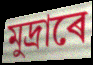
মুদ্ৰাৰে